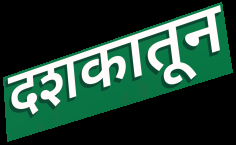
दशकातून